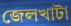
জেলখাটা